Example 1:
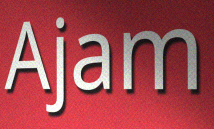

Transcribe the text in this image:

Ajam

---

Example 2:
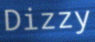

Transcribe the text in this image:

Dizzy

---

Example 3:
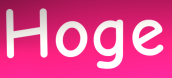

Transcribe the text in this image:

Hoge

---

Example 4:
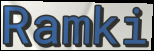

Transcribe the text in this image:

Ramki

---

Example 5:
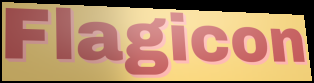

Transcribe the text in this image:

Flagicon